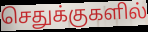
செதுக்குகளில்